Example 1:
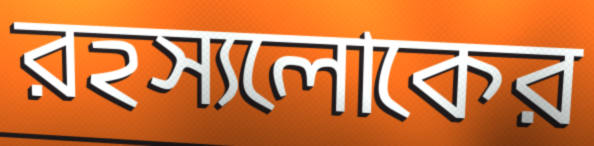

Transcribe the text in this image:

রহস্যলোকের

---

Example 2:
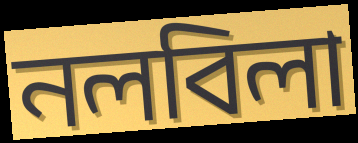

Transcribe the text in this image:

নলবিলা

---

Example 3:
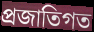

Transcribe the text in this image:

প্রজাতিগত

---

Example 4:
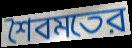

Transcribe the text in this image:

শৈবমতের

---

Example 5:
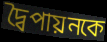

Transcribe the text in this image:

দ্বৈপায়নকে